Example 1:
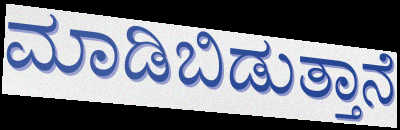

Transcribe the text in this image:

ಮಾಡಿಬಿಡುತ್ತಾನೆ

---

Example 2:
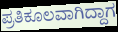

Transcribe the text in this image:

ಪ್ರತಿಕೂಲವಾಗಿದ್ದಾಗ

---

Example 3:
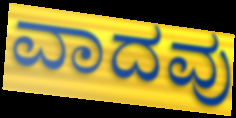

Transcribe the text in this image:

ವಾದವು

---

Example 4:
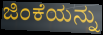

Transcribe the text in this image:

ಜಿಂಕೆಯನ್ನು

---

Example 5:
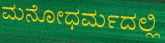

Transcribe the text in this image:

ಮನೋಧರ್ಮದಲ್ಲಿ